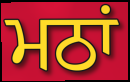
ਮਠਾਂ